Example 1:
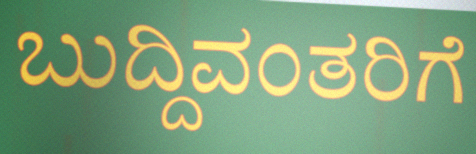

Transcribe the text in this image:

ಬುದ್ದಿವಂತರಿಗೆ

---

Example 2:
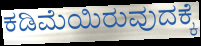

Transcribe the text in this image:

ಕಡಿಮೆಯಿರುವುದಕ್ಕೆ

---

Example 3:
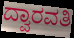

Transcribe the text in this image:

ದ್ವಾರವತಿ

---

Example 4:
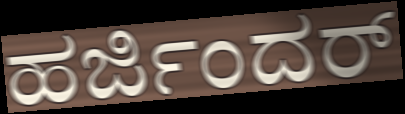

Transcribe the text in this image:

ಹರ್ಜಿಂದರ್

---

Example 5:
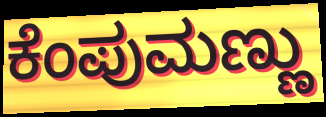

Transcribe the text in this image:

ಕೆಂಪುಮಣ್ಣು